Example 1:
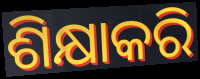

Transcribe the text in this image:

ଶିକ୍ଷାକରି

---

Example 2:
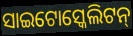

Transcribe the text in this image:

ସାଇଟୋସ୍କେଲିଟନ୍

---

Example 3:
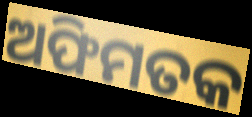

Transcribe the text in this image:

ଅଫିମତକ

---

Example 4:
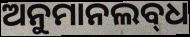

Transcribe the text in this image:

ଅନୁମାନଲବ୍‌ଧ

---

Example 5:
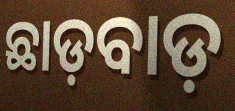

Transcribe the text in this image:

ଛାଡ଼ବାଡ଼